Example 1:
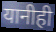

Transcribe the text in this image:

यानीही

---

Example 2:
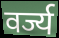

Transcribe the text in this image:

वर्ज्य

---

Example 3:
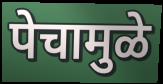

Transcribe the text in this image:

पेचामुळे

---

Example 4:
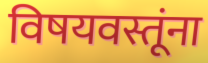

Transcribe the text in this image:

विषयवस्तूंना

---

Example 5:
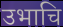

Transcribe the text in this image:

उभाचि